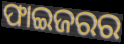
ଫାଇଜରର